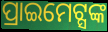
ପ୍ରାଇମେଟ୍ସଙ୍କ